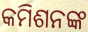
କମିଶନଙ୍କ